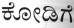
ಕೋಡಿಗೆ